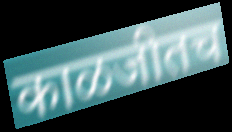
काळजीतच